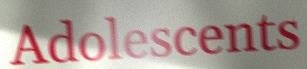
Adolescents